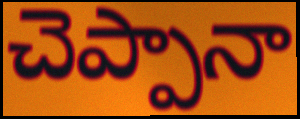
చెప్పానా